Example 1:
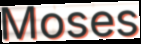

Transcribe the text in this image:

Moses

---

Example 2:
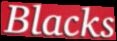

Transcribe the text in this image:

Blacks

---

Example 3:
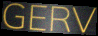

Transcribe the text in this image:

GERV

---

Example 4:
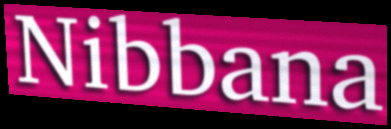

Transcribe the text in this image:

Nibbana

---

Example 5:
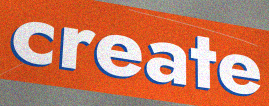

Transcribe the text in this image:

create